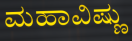
ಮಹಾವಿಷ್ಣು